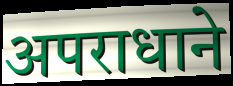
अपराधाने